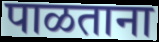
पाळताना